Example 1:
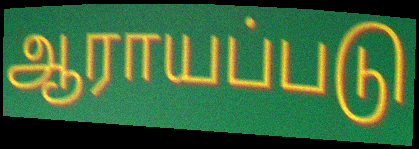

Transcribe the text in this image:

ஆராயப்படு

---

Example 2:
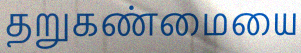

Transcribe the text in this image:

தறுகண்மையை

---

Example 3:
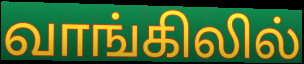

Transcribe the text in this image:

வாங்கிலில்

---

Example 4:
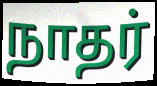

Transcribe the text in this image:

நாதர்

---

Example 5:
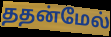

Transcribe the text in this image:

ததன்மேல்